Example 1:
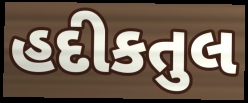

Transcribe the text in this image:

હદીકતુલ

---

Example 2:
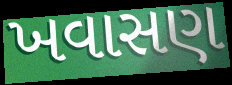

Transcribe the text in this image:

ખવાસણ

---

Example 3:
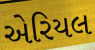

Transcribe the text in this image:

એરિયલ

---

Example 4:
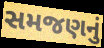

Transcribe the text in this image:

સમજણનું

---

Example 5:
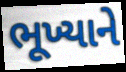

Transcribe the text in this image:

ભૂખ્યાને